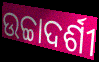
ଉଚ୍ଚାଦର୍ଶୀ